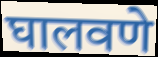
घालवणे